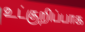
உட்குறிப்பாக